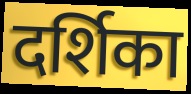
दर्शिका